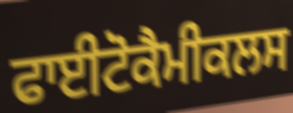
ਫਾਈਟੋਕੈਮੀਕਲਸ